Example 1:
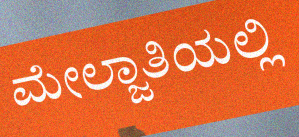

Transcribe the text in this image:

ಮೇಲ್ಜಾತಿಯಲ್ಲಿ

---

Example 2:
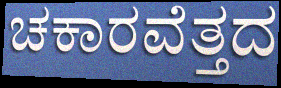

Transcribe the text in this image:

ಚಕಾರವೆತ್ತದ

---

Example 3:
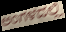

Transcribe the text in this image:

ಅಂಗಳದಲ್ಲಿ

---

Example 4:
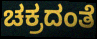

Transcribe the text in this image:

ಚಕ್ರದಂತೆ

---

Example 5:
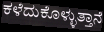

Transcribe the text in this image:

ಕಳೆದುಕೊಳ್ಳುತ್ತಾನೆ